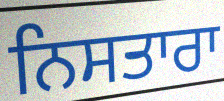
ਨਿਸਤਾਰਾ